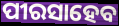
ପୀରସାହେବ